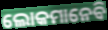
ଲୋକମାନେବି